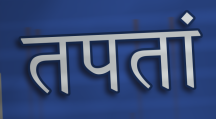
तपतां